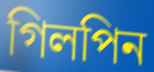
গিলপিন